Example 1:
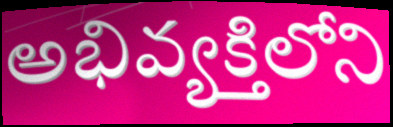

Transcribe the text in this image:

అభివ్యక్తిలోని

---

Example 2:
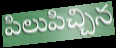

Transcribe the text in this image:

పిలుపిచ్చిన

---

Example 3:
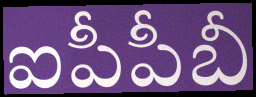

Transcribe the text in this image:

ఐపీపీబీ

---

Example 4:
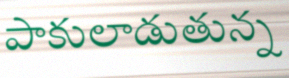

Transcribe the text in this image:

పాకులాడుతున్న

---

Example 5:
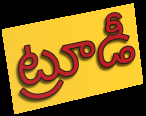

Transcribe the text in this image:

ట్రూడీ